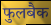
फुलबैक